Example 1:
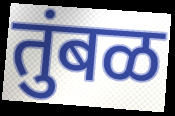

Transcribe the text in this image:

तुंबळ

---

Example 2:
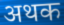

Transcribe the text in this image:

अथक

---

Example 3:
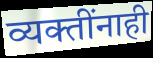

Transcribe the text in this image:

व्यक्तींनाही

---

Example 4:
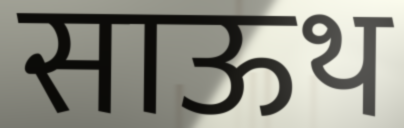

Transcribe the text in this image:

साऊथ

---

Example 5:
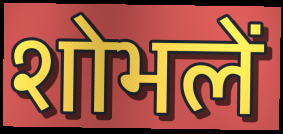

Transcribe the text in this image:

शोभलें